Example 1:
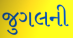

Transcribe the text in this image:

જુગલની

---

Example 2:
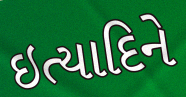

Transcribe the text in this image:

ઇત્‍યાદિને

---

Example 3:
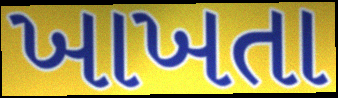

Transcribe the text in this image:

ખાખતા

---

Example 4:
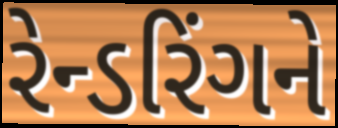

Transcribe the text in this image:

રેન્ડરિંગને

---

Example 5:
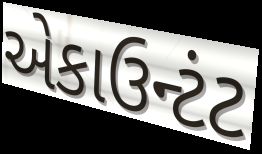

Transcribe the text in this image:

એકાઉન્ટંટ